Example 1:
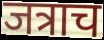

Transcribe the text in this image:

जत्राच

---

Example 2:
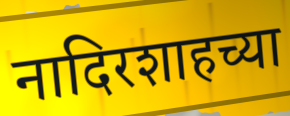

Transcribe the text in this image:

नादिरशाहच्या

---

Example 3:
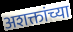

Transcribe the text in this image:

अशक्तांच्या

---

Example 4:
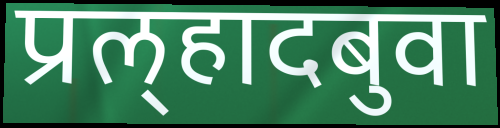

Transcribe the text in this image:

प्रल्हादबुवा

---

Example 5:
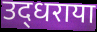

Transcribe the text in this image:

उद्धराया